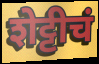
शेट्टीचं